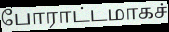
போராட்டமாகச்